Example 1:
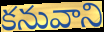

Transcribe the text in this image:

కనువాని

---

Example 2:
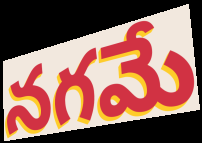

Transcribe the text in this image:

నగమే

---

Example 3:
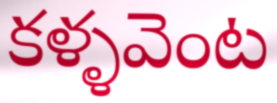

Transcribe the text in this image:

కళ్ళవెంట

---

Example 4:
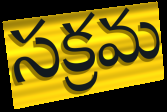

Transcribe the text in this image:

సక్రమ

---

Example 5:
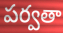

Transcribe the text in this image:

పర్వతా